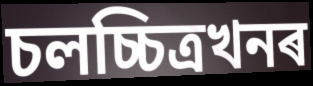
চলচ্চিত্ৰখনৰ